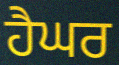
ਹੈਘਰ